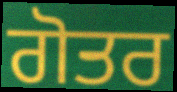
ਗੋਤਰ